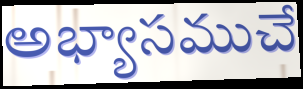
అభ్యాసముచే